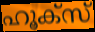
ഹൂക്സ്